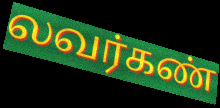
லவர்கண்